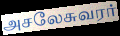
அசலேசுவரர்